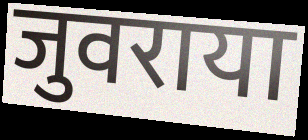
जुवराया